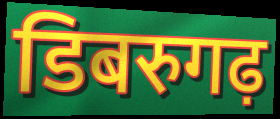
डिबरुगढ़